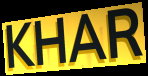
KHAR